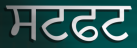
ਸਟਫਟ